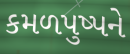
કમળપુષ્પને